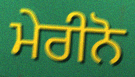
ਮੇਰੀਨੋ